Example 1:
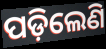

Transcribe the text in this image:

ପଡ଼ିଲେଣି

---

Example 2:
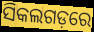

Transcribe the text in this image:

ସିକଲଗଡ଼ରେ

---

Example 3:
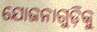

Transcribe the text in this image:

ଯୋଜନାଗୁଡ଼ିକୁ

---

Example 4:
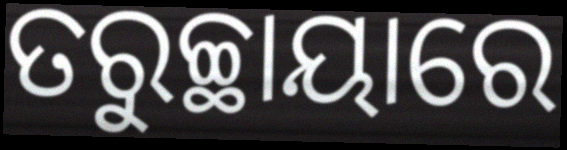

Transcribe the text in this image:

ତରୁଚ୍ଛାୟାରେ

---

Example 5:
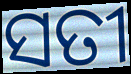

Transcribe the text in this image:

ସତୀ